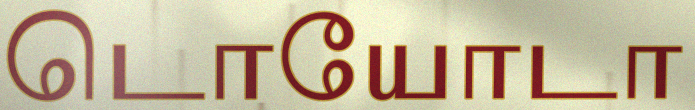
டொயோடா